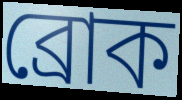
ব্রোক